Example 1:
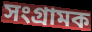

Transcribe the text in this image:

সংগ্ৰামক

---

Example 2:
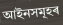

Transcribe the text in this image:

আইনসমূহৰ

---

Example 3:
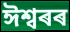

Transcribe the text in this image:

ঈশ্বৰৰ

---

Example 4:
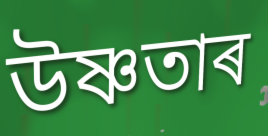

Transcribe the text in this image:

উষ্ণতাৰ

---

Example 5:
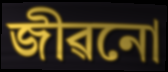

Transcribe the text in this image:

জীৱনো